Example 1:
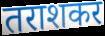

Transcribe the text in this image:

तराशकर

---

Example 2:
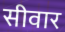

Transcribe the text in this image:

सीवार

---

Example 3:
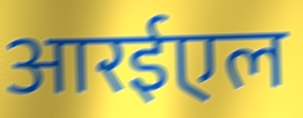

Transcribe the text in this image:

आरईएल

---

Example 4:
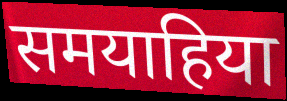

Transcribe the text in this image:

समयाहिया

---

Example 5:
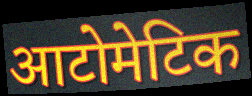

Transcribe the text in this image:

आटोमेटिक